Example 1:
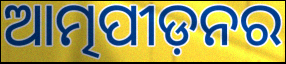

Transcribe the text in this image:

ଆତ୍ମପୀଡ଼ନର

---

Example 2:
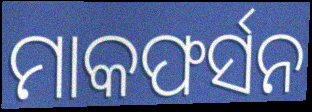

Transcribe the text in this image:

ମାକଫର୍ସନ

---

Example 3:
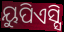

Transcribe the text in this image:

ୟୁପିଏସ୍ସି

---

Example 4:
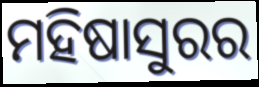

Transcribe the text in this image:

ମହିଷାସୁରର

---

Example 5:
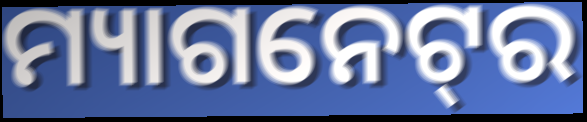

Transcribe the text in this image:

ମ୍ୟାଗନେଟ୍‌ର